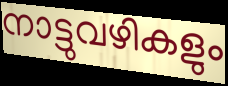
നാട്ടുവഴികളും